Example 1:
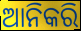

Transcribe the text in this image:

ଆନିକରି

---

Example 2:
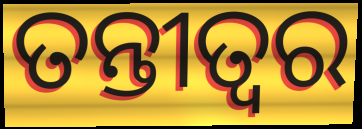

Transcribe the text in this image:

ତନ୍ତୀତ୍ୱର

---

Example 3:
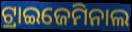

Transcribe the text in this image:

ଟ୍ରାଇଜେମିନାଲ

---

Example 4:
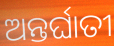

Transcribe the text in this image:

ଅନ୍ତର୍ଘାତୀ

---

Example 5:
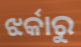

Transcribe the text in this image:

ଝର୍କାରୁ